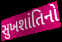
સુખશાંતિનો